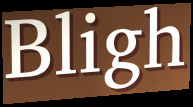
Bligh